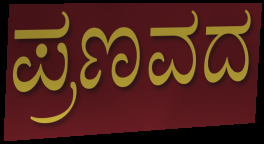
ಪ್ರಣವದ